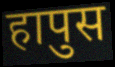
हापुस